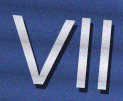
Vll